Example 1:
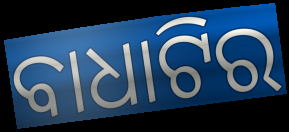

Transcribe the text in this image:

ବାଧାଟିର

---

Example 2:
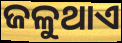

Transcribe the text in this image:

ଜଳୁଥାଏ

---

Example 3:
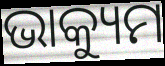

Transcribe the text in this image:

ଭାକ୍ୟୁମ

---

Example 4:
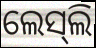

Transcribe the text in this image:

ଲେସ୍‍ଲି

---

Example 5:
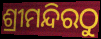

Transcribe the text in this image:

ଶ୍ରୀମନ୍ଦିରଠୁ